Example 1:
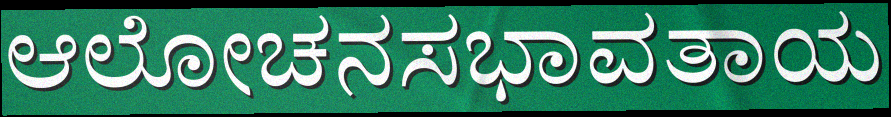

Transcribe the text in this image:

ಆಲೋಚನಸಭಾವತಾಯ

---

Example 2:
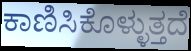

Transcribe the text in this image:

ಕಾಣಿಸಿಕೊಳ್ಳುತ್ತದೆ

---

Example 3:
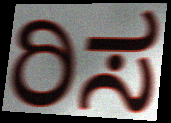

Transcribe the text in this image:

ರಿಸ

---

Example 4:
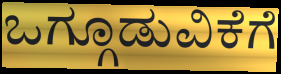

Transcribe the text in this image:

ಒಗ್ಗೂಡುವಿಕೆಗೆ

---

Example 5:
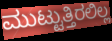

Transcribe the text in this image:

ಮುಟ್ಟುತ್ತಿರಲಿಲ್ಲ